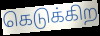
கெடுக்கிற